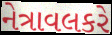
નેત્રાવલકરે